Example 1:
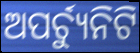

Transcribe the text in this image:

ଅପର୍ଚ୍ୟୁନିଟି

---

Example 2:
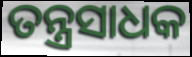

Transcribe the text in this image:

ତନ୍ତ୍ରସାଧକ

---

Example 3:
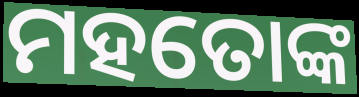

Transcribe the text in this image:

ମହତୋଙ୍କ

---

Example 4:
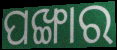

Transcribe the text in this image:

ପଙ୍ଖାର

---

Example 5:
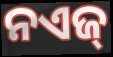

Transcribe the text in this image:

ନଏଜ୍